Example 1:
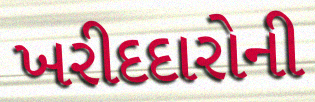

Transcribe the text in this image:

ખરીદદારોની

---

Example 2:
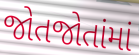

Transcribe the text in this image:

જોતજોતાંમાં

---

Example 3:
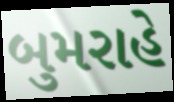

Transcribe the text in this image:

બુમરાહે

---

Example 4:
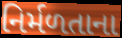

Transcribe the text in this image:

નિર્મળતાના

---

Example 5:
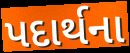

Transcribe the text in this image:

પદાર્થના